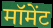
मॉमेंट